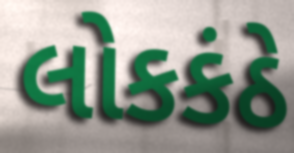
લોકકંઠે